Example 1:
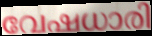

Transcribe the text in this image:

വേഷധാരി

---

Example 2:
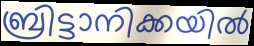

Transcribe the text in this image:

ബ്രിട്ടാനിക്കയിൽ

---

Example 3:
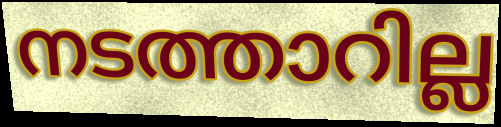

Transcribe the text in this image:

നടത്താറില്ല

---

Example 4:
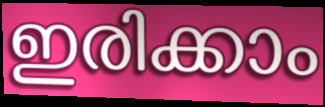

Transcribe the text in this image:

ഇരിക്കാം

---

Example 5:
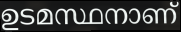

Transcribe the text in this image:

ഉടമസ്ഥനാണ്